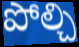
పోల్చి